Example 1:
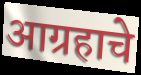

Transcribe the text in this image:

आग्रहाचे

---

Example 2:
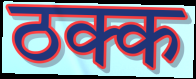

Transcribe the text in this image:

ठक्क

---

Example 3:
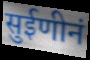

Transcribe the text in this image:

सुईणीनं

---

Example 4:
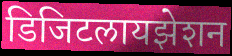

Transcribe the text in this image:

डिजिटलायझेशन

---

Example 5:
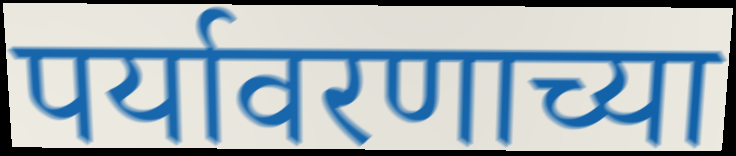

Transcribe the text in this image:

पर्यावरणाच्या